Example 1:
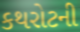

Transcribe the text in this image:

કથરોટની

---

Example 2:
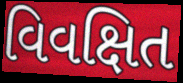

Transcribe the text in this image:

વિવક્ષિત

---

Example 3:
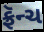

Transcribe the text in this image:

ફ્રૅન્ચ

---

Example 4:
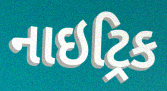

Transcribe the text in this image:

નાઇટ્રિક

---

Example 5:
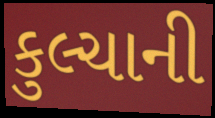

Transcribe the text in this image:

કુલ્ચાની